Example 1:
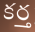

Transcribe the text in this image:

కర్త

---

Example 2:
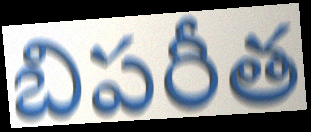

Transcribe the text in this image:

బిపరీత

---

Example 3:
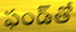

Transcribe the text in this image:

ఫండ్‌తో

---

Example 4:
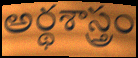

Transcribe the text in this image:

అర్థశాస్త్రం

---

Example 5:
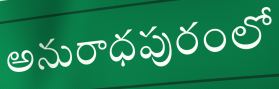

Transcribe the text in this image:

అనురాధపురంలో